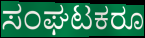
ಸಂಘಟಕರೂ